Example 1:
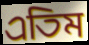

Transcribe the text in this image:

এতিম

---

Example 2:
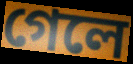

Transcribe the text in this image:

গেলে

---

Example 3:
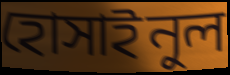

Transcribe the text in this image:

হোসাইনুল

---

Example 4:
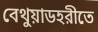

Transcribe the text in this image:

বেথুয়াডহরীতে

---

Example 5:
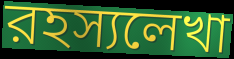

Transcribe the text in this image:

রহস্যলেখা